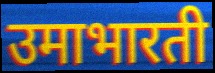
उमाभारती